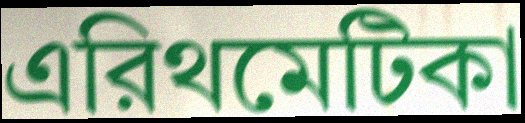
এরিথমেটিকা